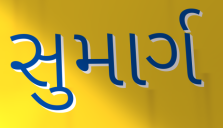
સુમાર્ગ